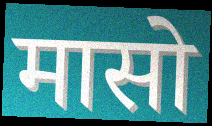
मासो